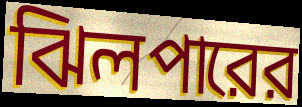
ঝিলপারের